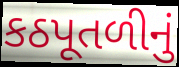
કઠપૂતળીનું